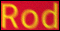
Rod